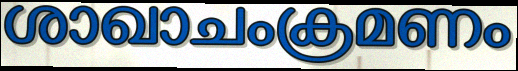
ശാഖാചംക്രമണം